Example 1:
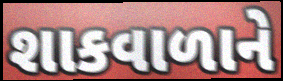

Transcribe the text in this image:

શાકવાળાને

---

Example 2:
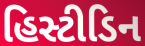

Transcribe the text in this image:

હિસ્ટીડિન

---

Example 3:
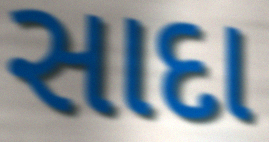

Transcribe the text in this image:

સાદા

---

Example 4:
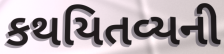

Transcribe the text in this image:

કથયિતવ્યની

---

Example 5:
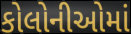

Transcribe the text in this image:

કોલોનીઓમાં